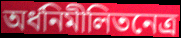
অর্ধনিমীলিতনেত্র